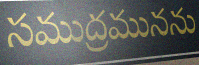
సముద్రమునను